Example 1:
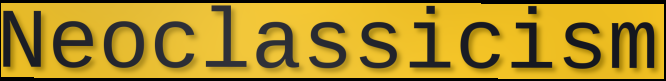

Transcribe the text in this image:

Neoclassicism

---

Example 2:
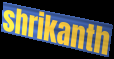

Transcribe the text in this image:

shrikanth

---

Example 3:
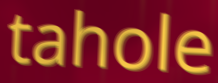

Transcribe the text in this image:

tahole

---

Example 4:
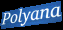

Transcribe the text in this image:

Polyana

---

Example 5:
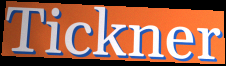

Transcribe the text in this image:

Tickner